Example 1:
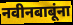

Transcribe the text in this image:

नवीनबाबूंना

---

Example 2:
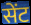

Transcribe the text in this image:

सेंट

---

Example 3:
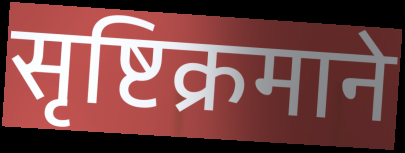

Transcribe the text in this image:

सृष्टिक्रमाने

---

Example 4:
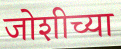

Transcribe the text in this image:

जोशीच्या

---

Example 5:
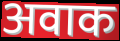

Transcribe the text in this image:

अवाक